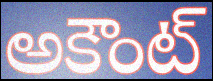
అకౌంట్